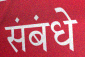
संबंधे